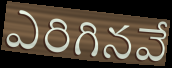
ఎరిగినవే